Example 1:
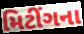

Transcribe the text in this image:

મિટીંગના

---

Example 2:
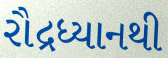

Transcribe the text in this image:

રૌદ્રધ્યાનથી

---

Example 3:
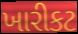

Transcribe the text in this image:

ખારીકટ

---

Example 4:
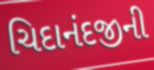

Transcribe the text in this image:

ચિદાનંદજીની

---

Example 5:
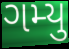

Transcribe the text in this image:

ગમ્યુ